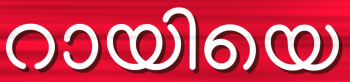
റായിയെ